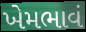
ખેમભાવં